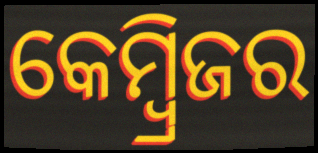
କେମ୍ୱ୍ରିଜର